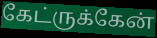
கேட்ருக்கேன்